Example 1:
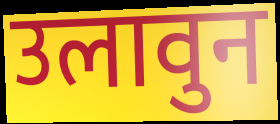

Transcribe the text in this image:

उलावुन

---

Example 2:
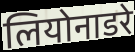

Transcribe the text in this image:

लियोनाडरे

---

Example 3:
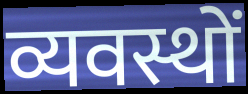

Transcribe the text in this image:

व्यवस्थों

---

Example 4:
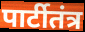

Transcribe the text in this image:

पार्टीतंत्र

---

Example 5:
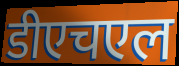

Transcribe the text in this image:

डीएचएल